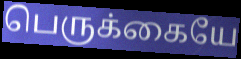
பெருக்கையே